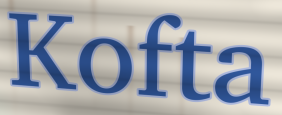
Kofta